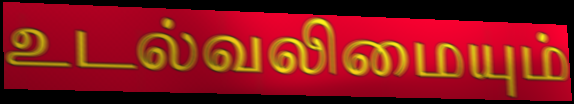
உடல்வலிமையும்